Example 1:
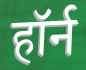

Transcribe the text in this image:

हॉर्न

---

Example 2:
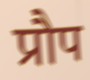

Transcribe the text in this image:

प्रौप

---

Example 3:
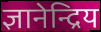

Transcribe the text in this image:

ज्ञानेन्द्रिय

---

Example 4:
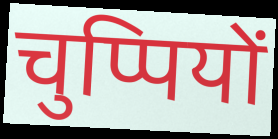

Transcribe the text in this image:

चुप्पियों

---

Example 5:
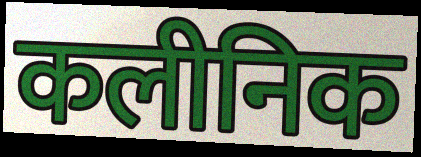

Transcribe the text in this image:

कलीनिक